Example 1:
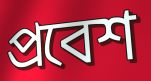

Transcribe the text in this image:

প্রবেশ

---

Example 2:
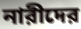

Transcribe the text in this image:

নারীদের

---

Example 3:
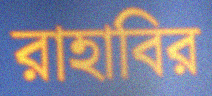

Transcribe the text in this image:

রাহাবির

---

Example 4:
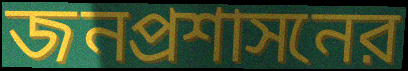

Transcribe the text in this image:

জনপ্রশাসনের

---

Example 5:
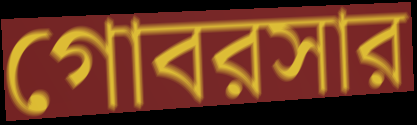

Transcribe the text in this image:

গোবরসার